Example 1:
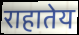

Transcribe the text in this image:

राहातेय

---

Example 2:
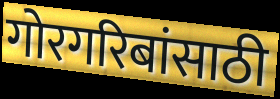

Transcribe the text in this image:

गोरगरिबांसाठी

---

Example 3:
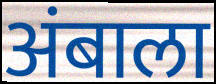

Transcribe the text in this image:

अंबाला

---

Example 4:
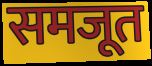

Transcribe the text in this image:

समजूत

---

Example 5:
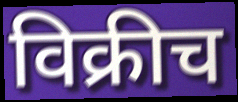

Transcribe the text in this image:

विक्रीच